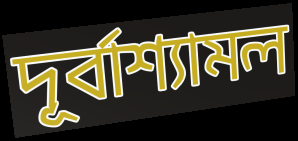
দূর্বাশ্যামল